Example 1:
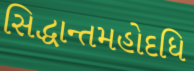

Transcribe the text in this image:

સિદ્ધાન્તમહોદધિ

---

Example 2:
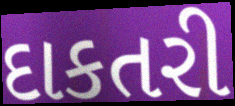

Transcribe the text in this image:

દાકતરી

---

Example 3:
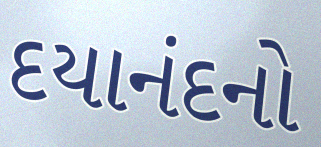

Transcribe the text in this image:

દયાનંદનો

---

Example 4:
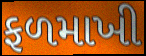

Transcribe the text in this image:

ફળમાખી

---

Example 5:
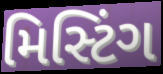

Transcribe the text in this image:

મિસ્ટિંગ